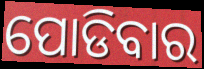
ପୋଡିବାର